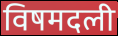
विषमदली